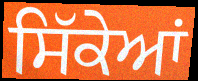
ਸਿੱਕੇਆਂ